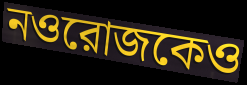
নওরোজকেও